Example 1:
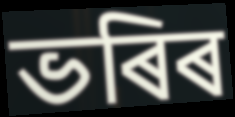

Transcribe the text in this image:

ভৰিৰ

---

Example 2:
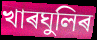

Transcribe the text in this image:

খাৰঘুলিৰ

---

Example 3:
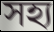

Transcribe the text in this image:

সহ্য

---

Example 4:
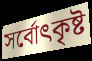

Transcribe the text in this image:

সৰ্বোৎকৃষ্ট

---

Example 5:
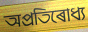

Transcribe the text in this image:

অপ্ৰতিৰোধ্য